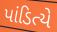
પાંડિત્યે